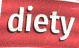
diety